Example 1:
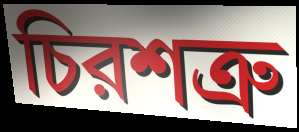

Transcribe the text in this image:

চিরশত্রু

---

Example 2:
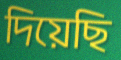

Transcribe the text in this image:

দিয়েছি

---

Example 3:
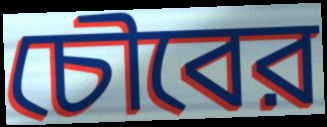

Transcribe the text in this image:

চৌবের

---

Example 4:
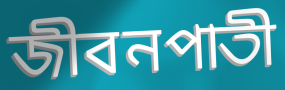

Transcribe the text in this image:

জীবনপাতী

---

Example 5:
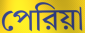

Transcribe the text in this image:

পেরিয়া